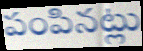
పంపినట్లు